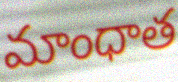
మాంధాత